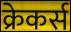
क्रेकर्स